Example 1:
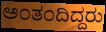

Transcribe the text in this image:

ಅಂತಂದಿದ್ದರು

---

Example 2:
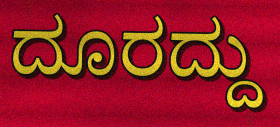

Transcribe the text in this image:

ದೂರದ್ದು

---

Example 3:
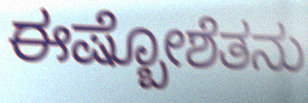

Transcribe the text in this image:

ಈಷ್ಬೋಶೆತನು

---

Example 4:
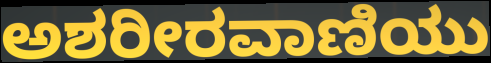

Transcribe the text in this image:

ಅಶರೀರವಾಣಿಯು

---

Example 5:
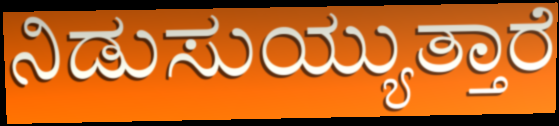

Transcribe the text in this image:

ನಿಡುಸುಯ್ಯುತ್ತಾರೆ